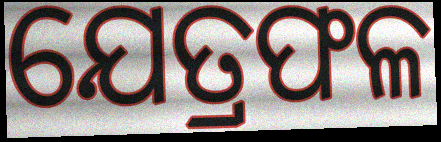
ଯେତ୍ରଫଳ